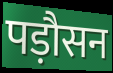
पड़ौसन